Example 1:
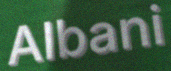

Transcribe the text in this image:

Albani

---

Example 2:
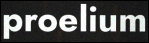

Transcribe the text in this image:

proelium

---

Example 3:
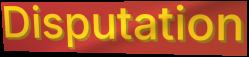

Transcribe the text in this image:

Disputation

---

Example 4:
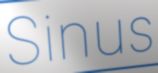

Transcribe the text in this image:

Sinus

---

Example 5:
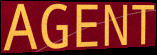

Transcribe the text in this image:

AGENT